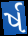
ર્ષ